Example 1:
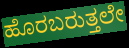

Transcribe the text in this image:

ಹೊರಬರುತ್ತಲೇ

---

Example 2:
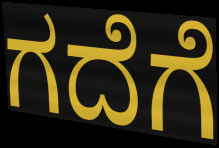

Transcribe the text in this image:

ಗದೆಗೆ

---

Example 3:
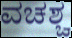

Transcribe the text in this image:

ವಚಶ್ಚ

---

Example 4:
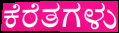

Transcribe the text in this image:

ಕೆರೆತಗಳು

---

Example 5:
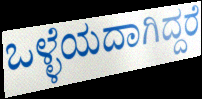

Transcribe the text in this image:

ಒಳ್ಳೆಯದಾಗಿದ್ದರೆ